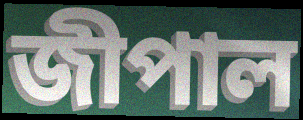
জীপাল